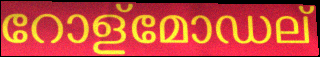
റോള്മോഡല്